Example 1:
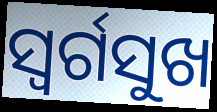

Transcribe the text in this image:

ସ୍ୱର୍ଗସୁଖ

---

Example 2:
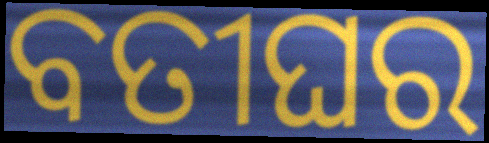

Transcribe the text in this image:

ବତୀଘର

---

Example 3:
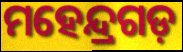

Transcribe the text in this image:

ମହେନ୍ଦ୍ରଗଡ଼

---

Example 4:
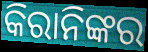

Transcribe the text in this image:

କିରାନିଙ୍କର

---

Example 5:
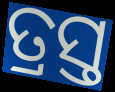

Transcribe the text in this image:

ତ୍ରସ୍ତ